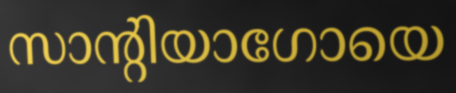
സാന്റിയാഗോയെ